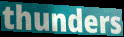
thunders